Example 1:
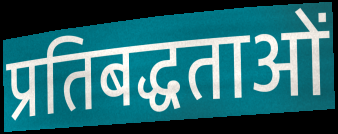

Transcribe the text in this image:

प्रतिबद्धताओं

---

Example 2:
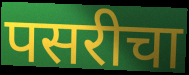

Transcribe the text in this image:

पसरीचा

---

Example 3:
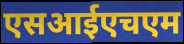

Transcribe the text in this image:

एसआईएचएम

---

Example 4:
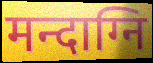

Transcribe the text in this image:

मन्दाग्नि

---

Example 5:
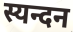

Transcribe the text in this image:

स्यन्दन